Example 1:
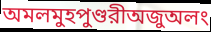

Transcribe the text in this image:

অমলমুহপুণ্ডরীঅজুঅলং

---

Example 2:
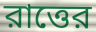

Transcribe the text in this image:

রাত্তের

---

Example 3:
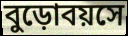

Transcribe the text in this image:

বুড়োবয়সে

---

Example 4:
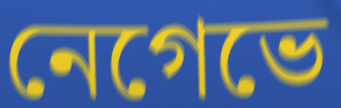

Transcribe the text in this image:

নেগেভে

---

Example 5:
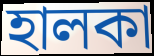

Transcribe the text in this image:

হালকা